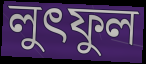
লুৎফুল